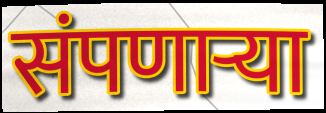
संपणार्‍या